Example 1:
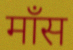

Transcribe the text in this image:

माँस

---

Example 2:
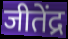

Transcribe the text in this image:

जीतेंद्र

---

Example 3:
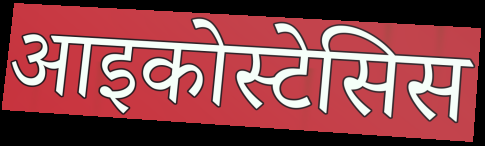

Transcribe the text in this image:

आइकोस्टेसिस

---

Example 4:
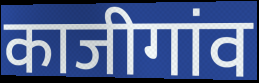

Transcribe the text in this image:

काजीगांव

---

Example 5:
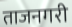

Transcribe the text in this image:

ताजनगरी